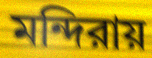
মন্দিরায়